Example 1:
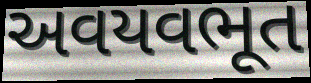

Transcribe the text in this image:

અવયવભૂત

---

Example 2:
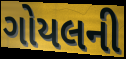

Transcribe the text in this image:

ગોયલની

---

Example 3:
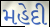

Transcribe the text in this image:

મહેદી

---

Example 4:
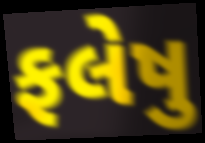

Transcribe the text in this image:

ફલેષુ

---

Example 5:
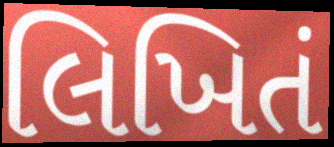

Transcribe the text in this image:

લિખિતં